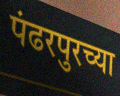
पंढरपुरच्या